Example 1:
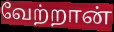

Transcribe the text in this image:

வேற்றான்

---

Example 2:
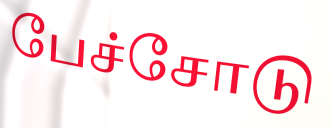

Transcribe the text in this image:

பேச்சோடு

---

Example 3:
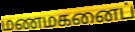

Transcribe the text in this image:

மணமகனைப்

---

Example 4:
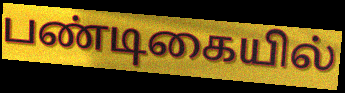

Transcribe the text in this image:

பண்டிகையில்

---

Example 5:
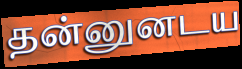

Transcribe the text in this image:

தன்னுனடய